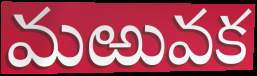
మఱువక